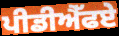
ਪੀਡੀਐੱਫਏ